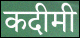
कदीमी